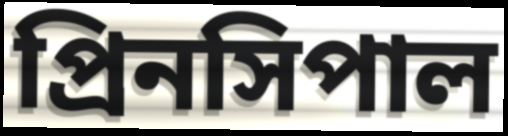
প্রিনসিপাল